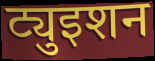
ट्युइशन